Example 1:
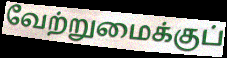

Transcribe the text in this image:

வேற்றுமைக்குப்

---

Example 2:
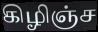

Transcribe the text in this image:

கிழிஞ்ச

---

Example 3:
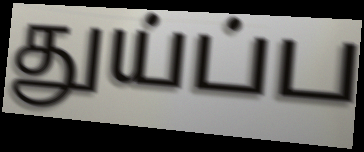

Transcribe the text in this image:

துய்ப்ப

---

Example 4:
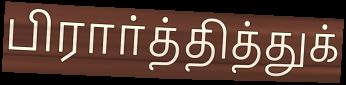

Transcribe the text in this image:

பிரார்த்தித்துக்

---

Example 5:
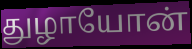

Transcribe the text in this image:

துழாயோன்